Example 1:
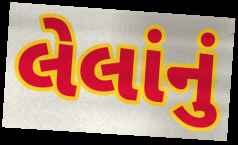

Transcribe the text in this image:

લેલાંનું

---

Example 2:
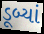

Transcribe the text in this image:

ડૂબ્યાં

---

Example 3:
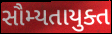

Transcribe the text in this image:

સૌમ્યતાયુક્ત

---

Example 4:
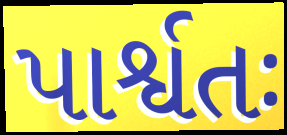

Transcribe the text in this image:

પાર્શ્વતઃ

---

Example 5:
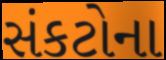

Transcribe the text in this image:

સંકટોના